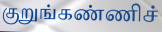
குறுங்கண்ணிச்